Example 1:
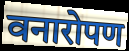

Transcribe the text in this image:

वनारोपण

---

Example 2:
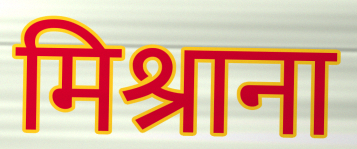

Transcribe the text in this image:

मिश्राना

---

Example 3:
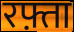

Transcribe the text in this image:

रफ़्ता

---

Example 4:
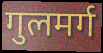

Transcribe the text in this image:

गुलमर्ग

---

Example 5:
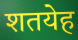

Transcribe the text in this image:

शतयेह